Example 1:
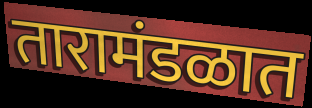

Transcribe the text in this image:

तारामंडळात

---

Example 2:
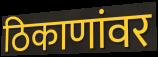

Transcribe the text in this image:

ठिकाणांवर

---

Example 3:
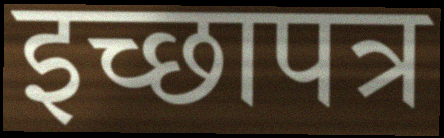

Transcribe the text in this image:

इच्छापत्र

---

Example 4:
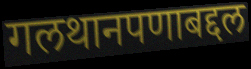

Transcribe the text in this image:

गलथानपणाबद्दल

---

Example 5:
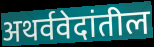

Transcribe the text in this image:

अथर्ववेदांतील